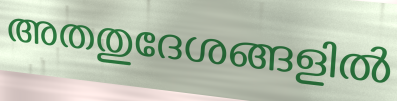
അതതുദേശങ്ങളിൽ